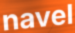
navel